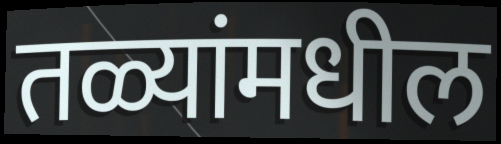
तळ्यांमधील